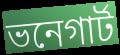
ভনেগার্ট